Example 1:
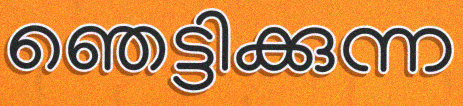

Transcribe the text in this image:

ഞെട്ടിക്കുന്ന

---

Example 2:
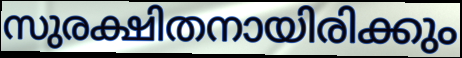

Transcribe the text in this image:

സുരക്ഷിതനായിരിക്കും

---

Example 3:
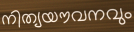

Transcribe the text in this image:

നിത്യയൗവനവും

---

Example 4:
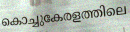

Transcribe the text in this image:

കൊച്ചുകേരളത്തിലെ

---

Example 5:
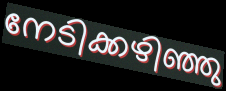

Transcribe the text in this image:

നേടിക്കഴിഞ്ഞു